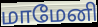
மாமேனி